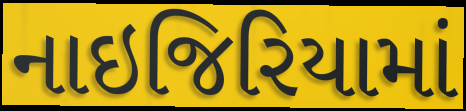
નાઇજિરિયામાં